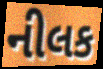
નીલક